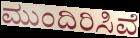
ಮುಂದಿರಿಸಿವೆ